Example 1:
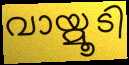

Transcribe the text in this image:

വായ്മൂടി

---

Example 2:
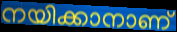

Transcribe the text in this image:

നയിക്കാനാണ്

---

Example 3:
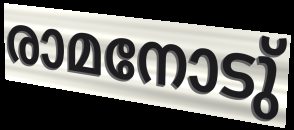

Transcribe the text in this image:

രാമനോടു്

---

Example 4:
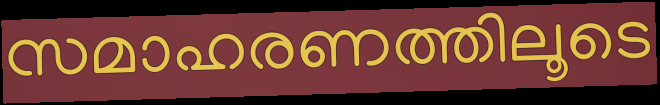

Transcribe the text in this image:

സമാഹരണത്തിലൂടെ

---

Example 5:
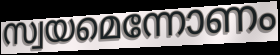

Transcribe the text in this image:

സ്വയമെന്നോണം